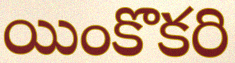
యింకొకరి